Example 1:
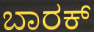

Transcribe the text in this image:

ಬಾರಕ್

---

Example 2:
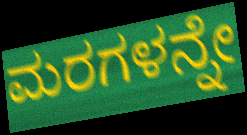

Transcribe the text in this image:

ಮರಗಳನ್ನೇ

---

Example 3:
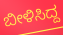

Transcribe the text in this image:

ಬೀಳಿಸಿದ್ದ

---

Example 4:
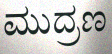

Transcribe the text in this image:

ಮುದ್ರಣ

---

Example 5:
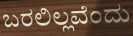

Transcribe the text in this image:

ಬರಲಿಲ್ಲವೆಂದು